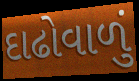
દાઢોવાળું